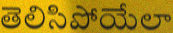
తెలిసిపోయేలా